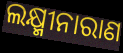
ଲକ୍ଷ୍ମୀନାରାଣ